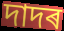
দাদৰ